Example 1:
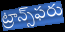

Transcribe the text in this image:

ట్రాన్స్‌ఫరు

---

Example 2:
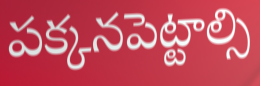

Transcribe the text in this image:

పక్కనపెట్టాల్సి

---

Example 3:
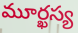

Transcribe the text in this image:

మూర్ఖస్య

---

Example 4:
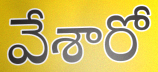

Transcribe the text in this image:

వేశారో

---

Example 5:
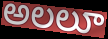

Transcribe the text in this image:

అలలూ